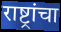
राष्ट्रांचा